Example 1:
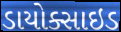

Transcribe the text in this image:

ડાયોક્સાઇડ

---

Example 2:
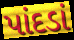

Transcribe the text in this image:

પાંદડાં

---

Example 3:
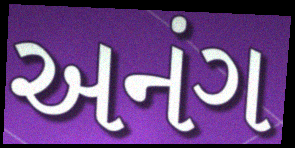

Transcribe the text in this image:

અનંગ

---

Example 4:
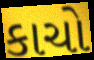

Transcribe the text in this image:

કાચો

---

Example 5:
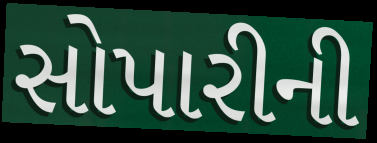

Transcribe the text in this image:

સોપારીની